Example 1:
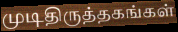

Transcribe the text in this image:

முடிதிருத்தகங்கள்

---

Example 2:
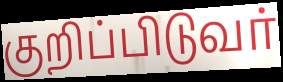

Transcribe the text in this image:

குறிப்பிடுவர்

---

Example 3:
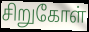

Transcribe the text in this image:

சிறுகோள்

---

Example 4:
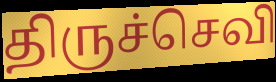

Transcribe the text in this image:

திருச்செவி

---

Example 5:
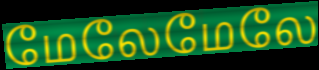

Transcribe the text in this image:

மேலேமேலே